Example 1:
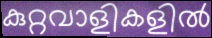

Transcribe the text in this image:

കുറ്റവാളികളിൽ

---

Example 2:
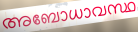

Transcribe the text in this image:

അബോധാവസ്ഥ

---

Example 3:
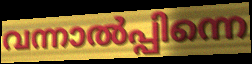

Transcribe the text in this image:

വന്നാൽപ്പിന്നെ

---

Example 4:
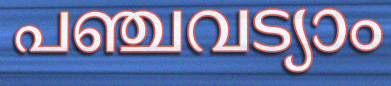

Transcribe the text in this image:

പഞ്ചവട്യാം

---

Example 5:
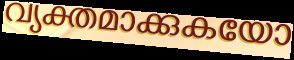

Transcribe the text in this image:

വ്യക്തമാക്കുകയോ